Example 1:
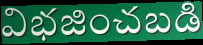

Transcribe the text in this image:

విభజించబడి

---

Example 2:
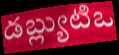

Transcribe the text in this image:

డబ్ల్యుటిఒ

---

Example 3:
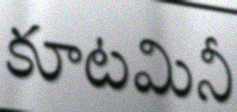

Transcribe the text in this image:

కూటమినీ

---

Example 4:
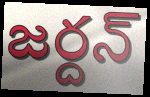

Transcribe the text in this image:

జర్దన్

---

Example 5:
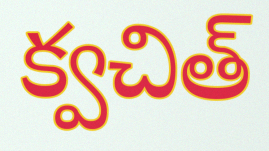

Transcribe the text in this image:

క్వచిత్